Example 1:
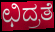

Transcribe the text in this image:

ಛಿದ್ರತೆ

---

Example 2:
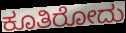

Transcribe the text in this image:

ಕೂತಿರೋದು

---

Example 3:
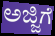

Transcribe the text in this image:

ಅಜ್ಜಿಗೆ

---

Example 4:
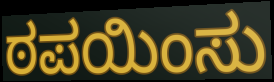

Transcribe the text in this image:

ಠಪಯಿಂಸು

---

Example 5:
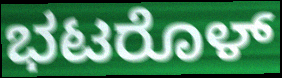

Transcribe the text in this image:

ಭಟರೊಳ್